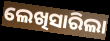
ଲେଖିସାରିଲା